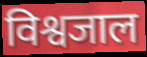
विश्वजाल